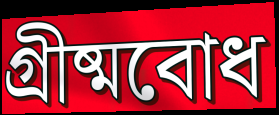
গ্রীষ্মবোধ